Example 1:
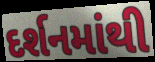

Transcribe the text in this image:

દર્શનમાંથી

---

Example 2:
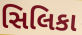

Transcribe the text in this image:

સિલિકા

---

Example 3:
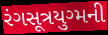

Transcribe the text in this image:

રંગસૂત્રયુગ્મની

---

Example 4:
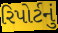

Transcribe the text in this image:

રિપોર્ટનું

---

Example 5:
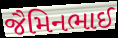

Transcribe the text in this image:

જૈમિનભાઈ